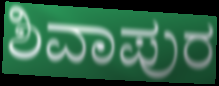
ಶಿವಾಪುರ